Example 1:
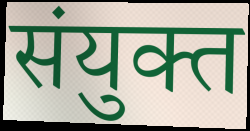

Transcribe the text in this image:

संयुक्‍त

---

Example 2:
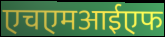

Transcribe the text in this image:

एचएमआईएफ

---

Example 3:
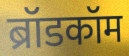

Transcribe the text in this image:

ब्रॉडकॉम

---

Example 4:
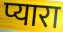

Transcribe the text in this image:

प्‍यारा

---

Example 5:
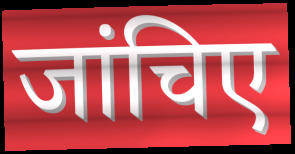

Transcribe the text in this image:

जांचिए